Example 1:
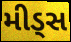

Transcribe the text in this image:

મીડ્સ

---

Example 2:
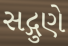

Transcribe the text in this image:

સદ્ગુણે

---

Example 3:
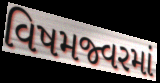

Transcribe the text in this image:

વિષમજ્વરમાં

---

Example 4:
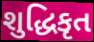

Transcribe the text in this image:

શુદ્ધિકૃત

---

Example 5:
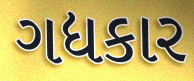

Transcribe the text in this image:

ગદ્યકાર